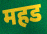
महड